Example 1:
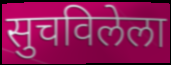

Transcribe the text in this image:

सुचविलेला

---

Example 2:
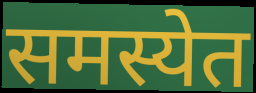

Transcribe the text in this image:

समस्येत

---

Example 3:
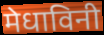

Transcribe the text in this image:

मेधाविनी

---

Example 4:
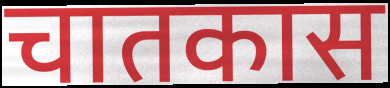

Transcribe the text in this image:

चातकास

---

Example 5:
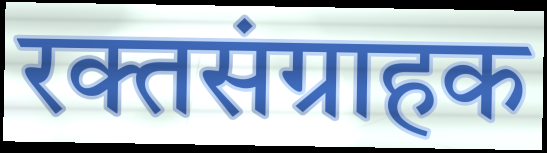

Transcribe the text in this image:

रक्तसंग्राहक